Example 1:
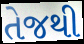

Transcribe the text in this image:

તેજથી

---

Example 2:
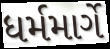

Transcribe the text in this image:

ધર્મમાર્ગે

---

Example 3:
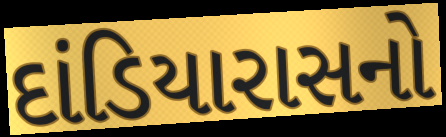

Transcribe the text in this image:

દાંડિયારાસનો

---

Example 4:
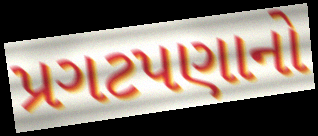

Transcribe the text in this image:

પ્રગટપણાનો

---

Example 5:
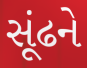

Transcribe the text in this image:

સૂંઢને